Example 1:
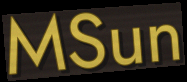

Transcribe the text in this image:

MSun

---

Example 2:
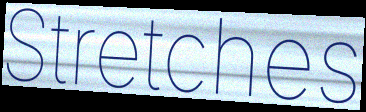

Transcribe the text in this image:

Stretches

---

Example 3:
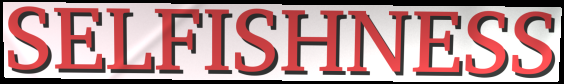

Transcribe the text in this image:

SELFISHNESS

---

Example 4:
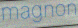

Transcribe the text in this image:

magnon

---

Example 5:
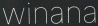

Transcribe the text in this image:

winana